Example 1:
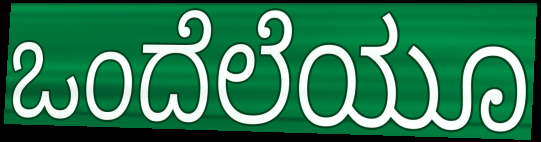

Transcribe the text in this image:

ಒಂದೆಲೆಯೂ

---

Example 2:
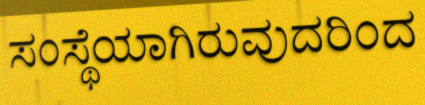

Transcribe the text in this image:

ಸಂಸ್ಥೆಯಾಗಿರುವುದರಿಂದ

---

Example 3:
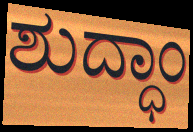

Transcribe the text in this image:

ಶುದ್ಧಾಂ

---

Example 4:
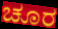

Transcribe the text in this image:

ಚೂರ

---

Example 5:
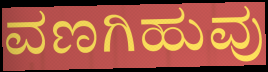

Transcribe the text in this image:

ವಣಗಿಹುವು